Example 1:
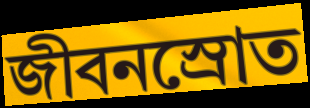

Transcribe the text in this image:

জীবনস্রোত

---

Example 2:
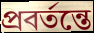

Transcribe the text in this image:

প্রবর্তন্তে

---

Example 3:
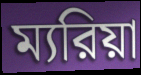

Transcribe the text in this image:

ম্যরিয়া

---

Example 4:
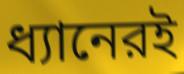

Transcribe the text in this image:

ধ্যানেরই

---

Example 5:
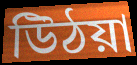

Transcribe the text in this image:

উিঠয়া